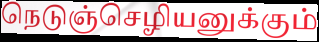
நெடுஞ்செழியனுக்கும்